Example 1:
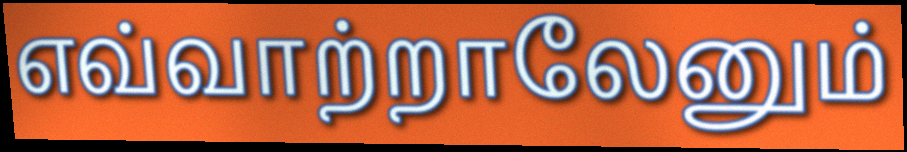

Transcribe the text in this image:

எவ்வாற்றாலேனும்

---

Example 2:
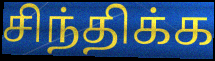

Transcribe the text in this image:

சிந்திக்க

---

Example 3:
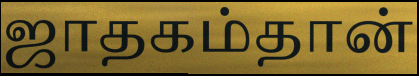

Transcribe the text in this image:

ஜாதகம்தான்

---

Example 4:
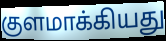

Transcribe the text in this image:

குளமாக்கியது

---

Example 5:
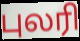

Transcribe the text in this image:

புலரி